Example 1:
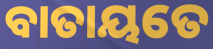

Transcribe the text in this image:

ବାତାୟତେ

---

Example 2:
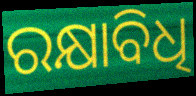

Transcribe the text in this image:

ରକ୍ଷାବିଧି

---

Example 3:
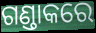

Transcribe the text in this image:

ଗଣ୍ଡାକରେ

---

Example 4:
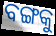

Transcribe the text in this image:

ବଙ୍ଗକୁ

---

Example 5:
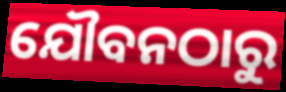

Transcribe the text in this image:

ଯୌବନଠାରୁ